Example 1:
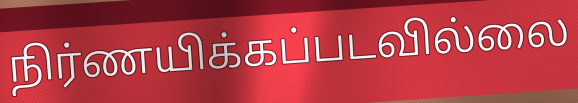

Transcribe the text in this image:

நிர்ணயிக்கப்படவில்லை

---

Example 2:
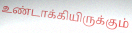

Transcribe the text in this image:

உண்டாக்கியிருக்கும்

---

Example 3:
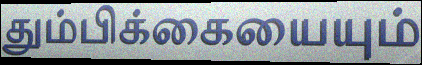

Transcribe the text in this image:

தும்பிக்கையையும்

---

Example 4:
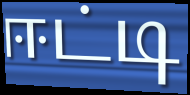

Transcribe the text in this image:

ஈட்டி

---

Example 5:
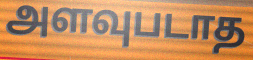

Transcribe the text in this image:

அளவுபடாத